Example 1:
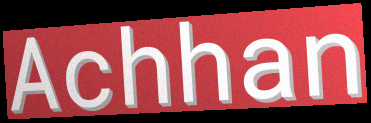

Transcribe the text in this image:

Achhan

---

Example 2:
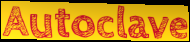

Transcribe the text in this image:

Autoclave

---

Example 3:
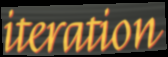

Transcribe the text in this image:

iteration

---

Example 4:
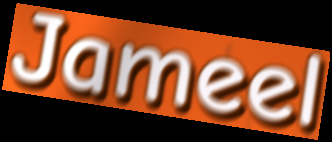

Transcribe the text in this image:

Jameel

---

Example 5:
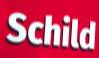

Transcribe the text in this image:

Schild